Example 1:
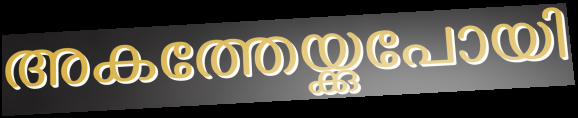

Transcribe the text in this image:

അകത്തേയ്ക്കുപോയി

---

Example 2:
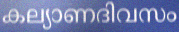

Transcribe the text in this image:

കല്യാണദിവസം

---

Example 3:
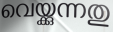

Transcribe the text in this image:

വെയ്ക്കുന്നതു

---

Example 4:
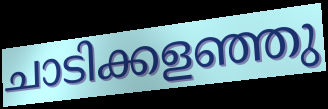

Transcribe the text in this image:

ചാടിക്കളഞ്ഞു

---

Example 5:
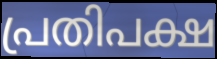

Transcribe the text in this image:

പ്രതിപക്ഷ